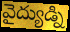
వైద్యుడ్ని